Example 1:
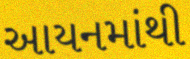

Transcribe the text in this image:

આયનમાંથી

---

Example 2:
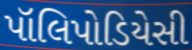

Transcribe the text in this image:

પૉલિપોડિયેસી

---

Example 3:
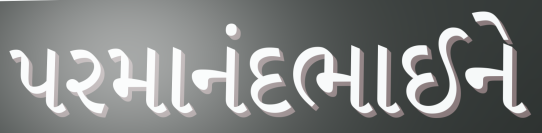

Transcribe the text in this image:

પરમાનંદભાઈને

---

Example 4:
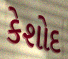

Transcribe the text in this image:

કેશોદ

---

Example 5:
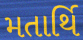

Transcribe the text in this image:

મતાર્થિ